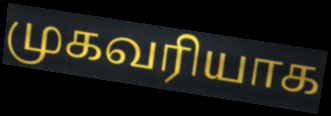
முகவரியாக